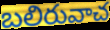
బలిరువాచ